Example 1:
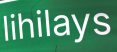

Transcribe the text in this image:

lihilays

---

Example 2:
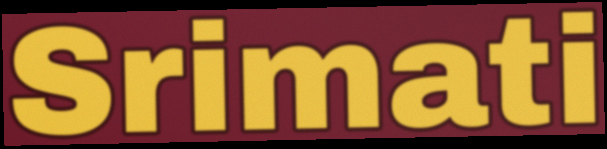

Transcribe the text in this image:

Srimati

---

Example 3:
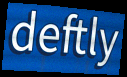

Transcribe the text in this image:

deftly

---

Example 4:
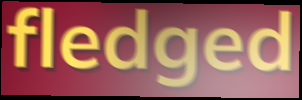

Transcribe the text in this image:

fledged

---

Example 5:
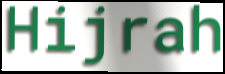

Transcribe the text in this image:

Hijrah